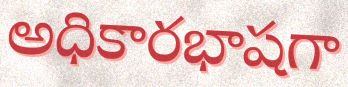
అధికారభాషగా